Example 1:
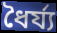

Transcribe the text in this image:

ধৈর্য্য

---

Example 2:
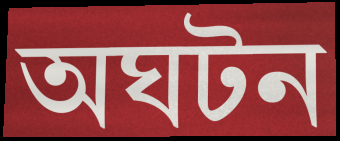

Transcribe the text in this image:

অঘটন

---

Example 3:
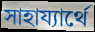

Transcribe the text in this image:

সাহায্যার্থে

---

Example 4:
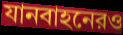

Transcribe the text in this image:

যানবাহনেরও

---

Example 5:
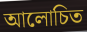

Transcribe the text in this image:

আলোচিত